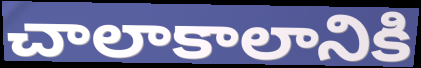
చాలాకాలానికి